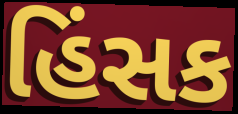
હિંસક